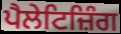
ਪੈਲੇਟਿਜ਼ਿੰਗ